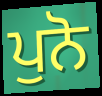
ਪੁਨੋ